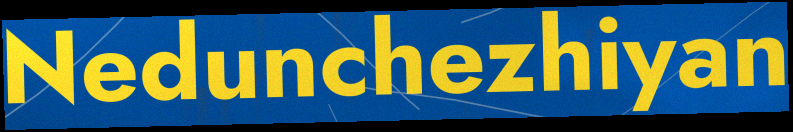
Nedunchezhiyan